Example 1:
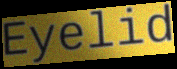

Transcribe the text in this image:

Eyelid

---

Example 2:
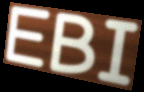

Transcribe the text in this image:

EBI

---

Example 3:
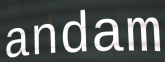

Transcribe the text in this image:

andam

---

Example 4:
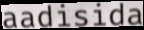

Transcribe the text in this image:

aadisida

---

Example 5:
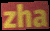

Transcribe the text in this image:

zha